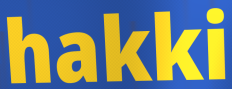
hakki